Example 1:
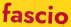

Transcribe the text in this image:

fascio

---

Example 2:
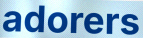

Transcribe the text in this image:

adorers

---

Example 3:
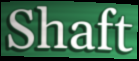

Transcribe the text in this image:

Shaft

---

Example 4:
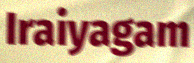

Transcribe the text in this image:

Iraiyagam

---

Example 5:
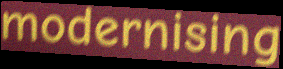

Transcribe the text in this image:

modernising